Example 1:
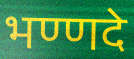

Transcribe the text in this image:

भण्णदे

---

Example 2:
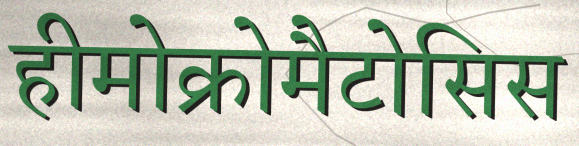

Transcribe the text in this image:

हीमोक्रोमैटोसिस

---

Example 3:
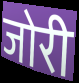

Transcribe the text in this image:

जोरी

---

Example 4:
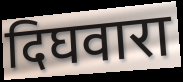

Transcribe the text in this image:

दिघवारा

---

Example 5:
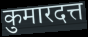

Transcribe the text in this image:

कुमारदत्त